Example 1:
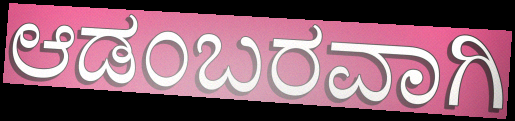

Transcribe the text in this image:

ಆಡಂಬರವಾಗಿ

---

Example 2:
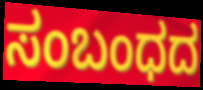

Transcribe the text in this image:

ಸಂಬಂಧದ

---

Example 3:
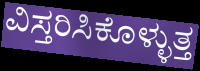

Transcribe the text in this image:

ವಿಸ್ತರಿಸಿಕೊಳ್ಳುತ್ತ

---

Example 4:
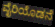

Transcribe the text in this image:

ವೈರಿಯೊಡನೆ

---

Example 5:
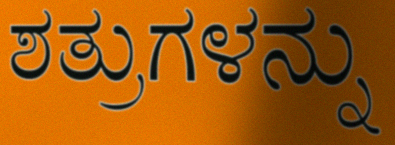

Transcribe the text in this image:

ಶತ್ರುಗಳನ್ನು